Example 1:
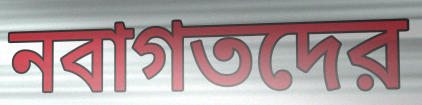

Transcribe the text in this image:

নবাগতদের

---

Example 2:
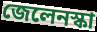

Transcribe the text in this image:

জেলেনস্কা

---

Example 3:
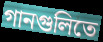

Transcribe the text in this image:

গানগুলিতে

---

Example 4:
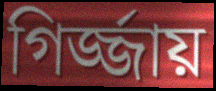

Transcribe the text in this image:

গির্জ্জায়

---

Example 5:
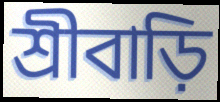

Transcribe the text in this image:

শ্রীবাড়ি